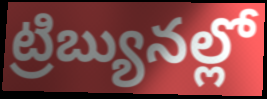
ట్రిబ్యునల్లో